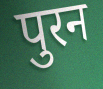
पुरन